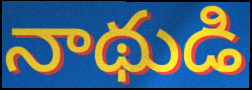
నాథుడి